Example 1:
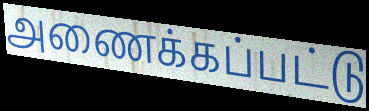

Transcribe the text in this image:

அணைக்கப்பட்டு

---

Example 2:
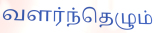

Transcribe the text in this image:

வளர்ந்தெழும்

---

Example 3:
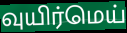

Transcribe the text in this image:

வுயிர்மெய்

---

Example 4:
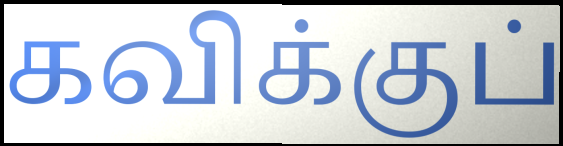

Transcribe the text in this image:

கவிக்குப்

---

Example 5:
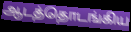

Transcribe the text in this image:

ஆடத்தொடங்கிய